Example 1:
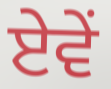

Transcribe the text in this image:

ਏਵੇਂ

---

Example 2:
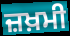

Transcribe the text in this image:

ਜ਼ਖ਼ਮੀ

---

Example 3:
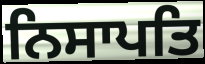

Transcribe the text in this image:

ਨਿਸਾਪਤਿ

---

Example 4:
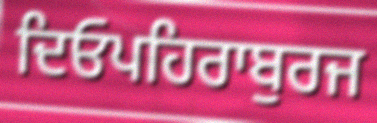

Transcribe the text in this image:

ਦਿਓਪਹਿਰਾਬੁਰਜ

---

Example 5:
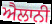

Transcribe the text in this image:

ਐਲਾਨੀ